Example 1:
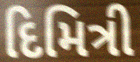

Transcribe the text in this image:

દિમિત્રી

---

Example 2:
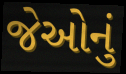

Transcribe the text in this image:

જેઓનું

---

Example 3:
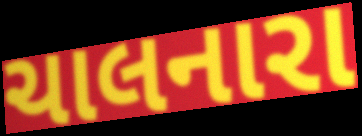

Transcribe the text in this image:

ચાલનારા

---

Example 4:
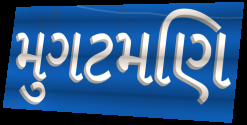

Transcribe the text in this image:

મુગટમણિ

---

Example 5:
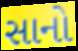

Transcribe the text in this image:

સાનો